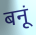
बनूं